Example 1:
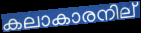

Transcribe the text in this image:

കലാകാരനില്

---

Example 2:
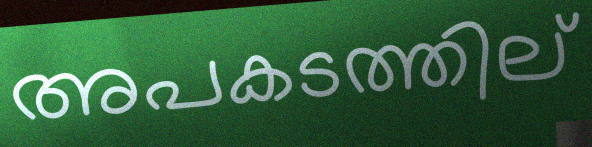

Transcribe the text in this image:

അപകടത്തില്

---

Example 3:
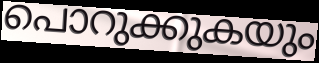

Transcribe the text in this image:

പൊറുക്കുകയും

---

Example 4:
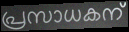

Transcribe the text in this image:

പ്രസാധകന്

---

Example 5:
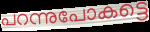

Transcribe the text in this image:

പറന്നുപോകട്ടെ